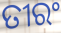
ତୀରଂ